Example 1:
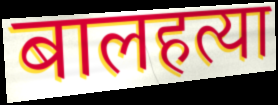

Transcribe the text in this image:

बालहत्या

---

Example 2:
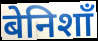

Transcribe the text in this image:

बेनिशाँ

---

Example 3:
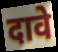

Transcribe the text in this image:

दावे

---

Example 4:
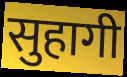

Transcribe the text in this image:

सुहागी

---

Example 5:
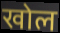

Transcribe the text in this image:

खोल